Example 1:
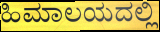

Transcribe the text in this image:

ಹಿಮಾಲಯದಲ್ಲಿ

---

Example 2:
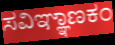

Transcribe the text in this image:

ಸವಿಞ್ಞಾಣಕಂ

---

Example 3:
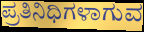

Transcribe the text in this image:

ಪ್ರತಿನಿಧಿಗಳಾಗುವ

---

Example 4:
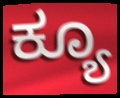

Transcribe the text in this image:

ಕ್ಯೂ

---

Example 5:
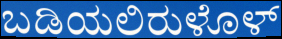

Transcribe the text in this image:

ಬಡಿಯಲಿರುಳೊಳ್